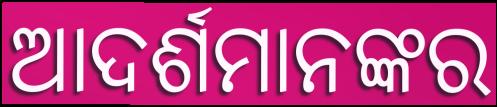
ଆଦର୍ଶମାନଙ୍କର